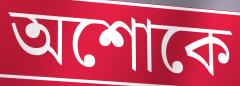
অশোকে